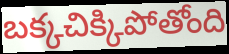
బక్కచిక్కిపోతోంది